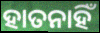
ହାତନାହିଁ